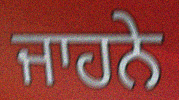
ਜਾਹਨੇ